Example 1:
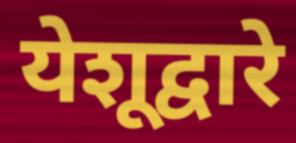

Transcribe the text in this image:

येशूद्वारे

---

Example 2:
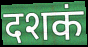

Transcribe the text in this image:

दशकं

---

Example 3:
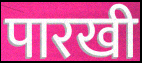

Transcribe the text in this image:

पारखी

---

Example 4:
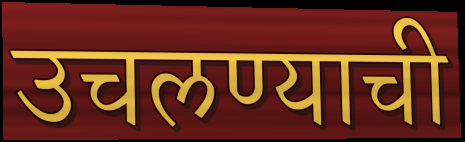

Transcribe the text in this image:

उचलण्याची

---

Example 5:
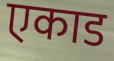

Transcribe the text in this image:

एकाड